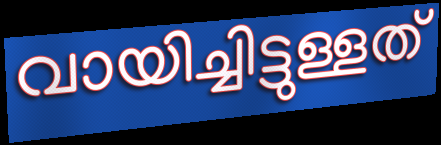
വായിച്ചിട്ടുള്ളത്